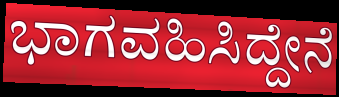
ಭಾಗವಹಿಸಿದ್ದೇನೆ